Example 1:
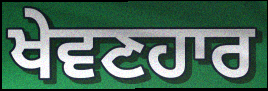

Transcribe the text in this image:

ਖੇਵਣਹਾਰ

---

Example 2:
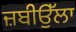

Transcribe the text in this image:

ਜ਼ਬੀਉੱਲਾ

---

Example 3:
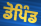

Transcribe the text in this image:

ਡੋਪਿੰਡ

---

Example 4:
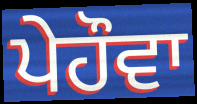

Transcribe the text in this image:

ਪੇਹੌਵਾ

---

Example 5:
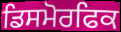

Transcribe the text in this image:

ਡਿਸਮੋਰਫਿਕ